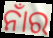
ନାଁର